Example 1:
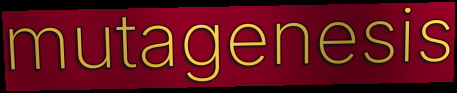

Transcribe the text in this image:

mutagenesis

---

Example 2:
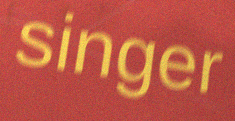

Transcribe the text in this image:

singer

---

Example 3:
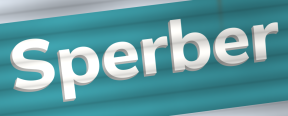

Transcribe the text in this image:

Sperber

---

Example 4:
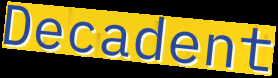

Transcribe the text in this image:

Decadent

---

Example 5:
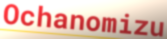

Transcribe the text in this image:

Ochanomizu